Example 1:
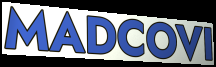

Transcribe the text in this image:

MADCOVI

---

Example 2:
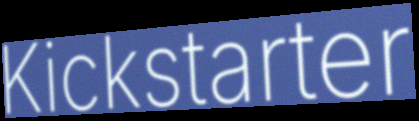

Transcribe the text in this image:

Kickstarter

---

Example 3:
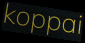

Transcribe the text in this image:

koppai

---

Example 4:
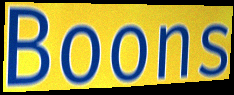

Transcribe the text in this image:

Boons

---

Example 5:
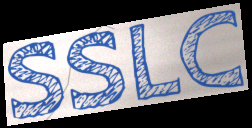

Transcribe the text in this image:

SSLC